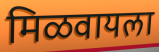
मिळवायला